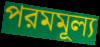
পরমমূল্য